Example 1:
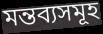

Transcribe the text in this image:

মন্তব্যসমূহ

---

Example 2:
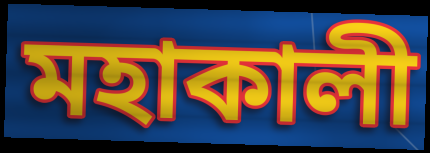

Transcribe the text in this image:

মহাকালী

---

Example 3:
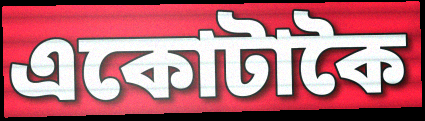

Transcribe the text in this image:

একোটাকৈ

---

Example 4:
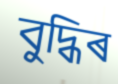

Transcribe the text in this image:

বুদ্ধিৰ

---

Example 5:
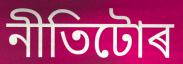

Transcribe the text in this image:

নীতিটোৰ